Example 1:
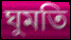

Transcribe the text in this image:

ঘুমতি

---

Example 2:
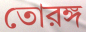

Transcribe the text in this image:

তোরঙ্গ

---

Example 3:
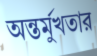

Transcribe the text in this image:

অন্তর্মুখতার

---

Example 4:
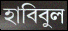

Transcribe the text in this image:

হাবিবুল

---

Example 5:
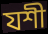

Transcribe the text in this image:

যশী